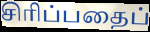
சிரிப்பதைப்